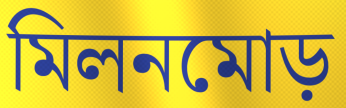
মিলনমোড়